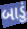
બાડું